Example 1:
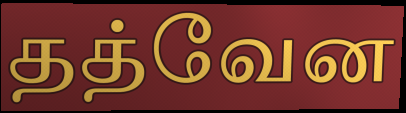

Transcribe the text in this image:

தத்வேன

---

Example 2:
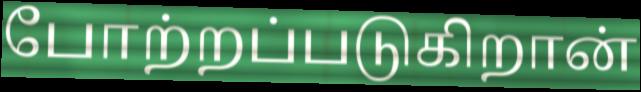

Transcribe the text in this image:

போற்றப்படுகிறான்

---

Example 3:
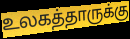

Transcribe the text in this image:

உலகத்தாருக்கு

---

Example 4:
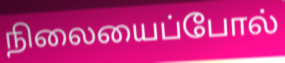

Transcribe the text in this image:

நிலையைப்போல்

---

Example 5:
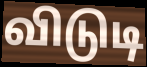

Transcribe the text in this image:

விடுடி